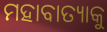
ମହାବାତ୍ୟାକୁ